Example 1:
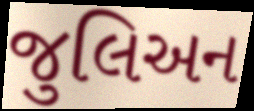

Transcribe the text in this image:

જુલિઅન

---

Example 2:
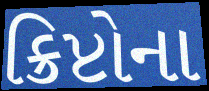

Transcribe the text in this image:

ક્રિપ્ટોના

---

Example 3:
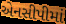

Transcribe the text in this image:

એનસીપીમાં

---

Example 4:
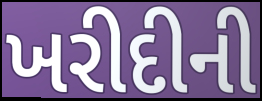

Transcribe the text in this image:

ખરીદીની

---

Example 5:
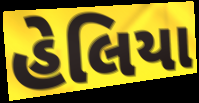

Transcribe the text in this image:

હેલિયા